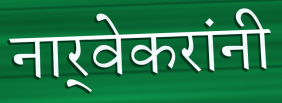
नार्वेकरांनी